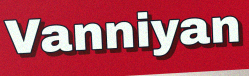
Vanniyan